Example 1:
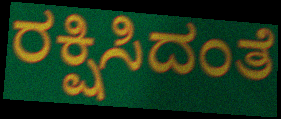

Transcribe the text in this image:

ರಕ್ಷಿಸಿದಂತೆ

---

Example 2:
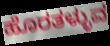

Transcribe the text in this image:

ಹೊರತಳ್ಳುವ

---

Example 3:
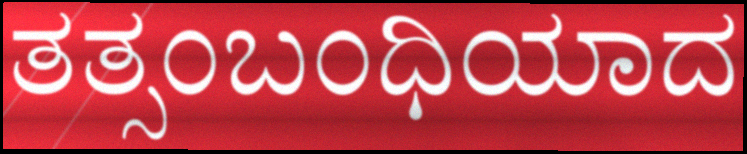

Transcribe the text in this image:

ತತ್ಸಂಬಂಧಿಯಾದ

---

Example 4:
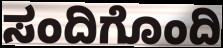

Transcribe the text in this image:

ಸಂದಿಗೊಂದಿ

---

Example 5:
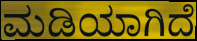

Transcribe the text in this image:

ಮಡಿಯಾಗಿದೆ